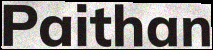
Paithan